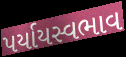
પર્યાયસ્વભાવ